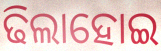
ଢିଲାହୋଇ